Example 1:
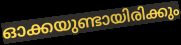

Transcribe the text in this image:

ഓക്കയുണ്ടായിരിക്കും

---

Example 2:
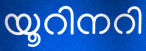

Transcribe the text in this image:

യൂറിനറി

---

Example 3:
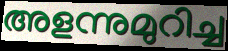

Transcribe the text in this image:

അളന്നുമുറിച്ച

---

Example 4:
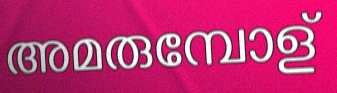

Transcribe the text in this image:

അമരുമ്പോള്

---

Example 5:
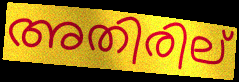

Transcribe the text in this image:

അതിരില്